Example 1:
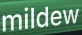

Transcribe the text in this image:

mildew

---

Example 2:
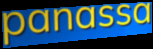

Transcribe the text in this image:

panassa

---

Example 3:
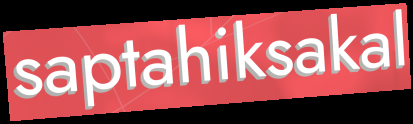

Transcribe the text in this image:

saptahiksakal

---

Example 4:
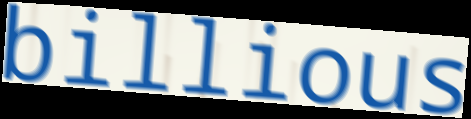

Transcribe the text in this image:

billious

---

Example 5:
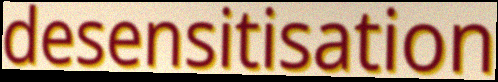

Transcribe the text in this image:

desensitisation